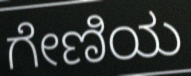
ಗೇಣಿಯ